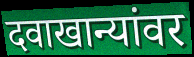
दवाखान्यांवर